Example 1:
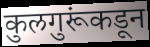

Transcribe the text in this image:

कुलगुरूंकडून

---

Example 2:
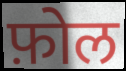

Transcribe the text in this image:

फ़ोल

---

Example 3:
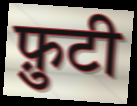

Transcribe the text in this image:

फ़ुटी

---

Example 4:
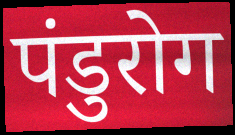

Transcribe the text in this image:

पंडुरोग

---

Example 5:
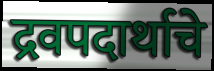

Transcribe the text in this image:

द्रवपदार्थाचे